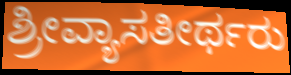
ಶ್ರೀವ್ಯಾಸತೀರ್ಥರು